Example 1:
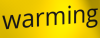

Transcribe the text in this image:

warming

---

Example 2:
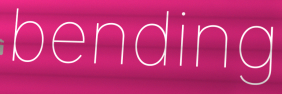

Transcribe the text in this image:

bending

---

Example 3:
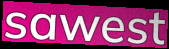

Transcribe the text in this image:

sawest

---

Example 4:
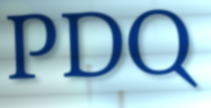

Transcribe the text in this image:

PDQ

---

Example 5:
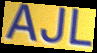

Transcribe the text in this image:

AJL